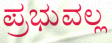
ಪ್ರಭುವಲ್ಲ